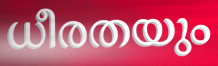
ധീരതയും